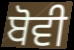
ਬੋਵੀ